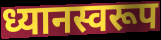
ध्यानस्वरूप